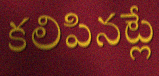
కలిపినట్లే